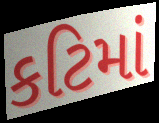
કટિમાં